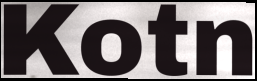
Kotn